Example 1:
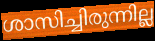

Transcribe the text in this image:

ശാസിച്ചിരുന്നില്ല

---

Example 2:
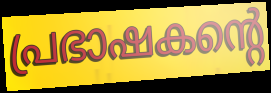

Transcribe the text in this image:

പ്രഭാഷകന്റെ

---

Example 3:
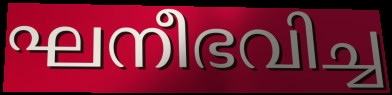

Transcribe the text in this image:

ഘനീഭവിച്ച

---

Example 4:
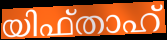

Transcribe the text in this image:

യിഫ്താഹ്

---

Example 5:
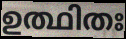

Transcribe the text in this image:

ഉത്ഥിതഃ